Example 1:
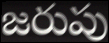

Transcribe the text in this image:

జరుపు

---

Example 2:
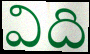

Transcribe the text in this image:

విది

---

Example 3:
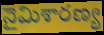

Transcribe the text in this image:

నైమిశారణ్య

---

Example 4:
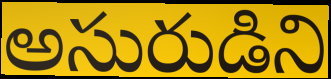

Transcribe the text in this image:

అసురుడిని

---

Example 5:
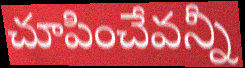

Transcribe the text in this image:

చూపించేవన్నీ